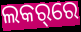
ଲକର୍‌ରେ